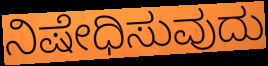
ನಿಷೇಧಿಸುವುದು